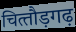
चित्‍तौड़गढ़